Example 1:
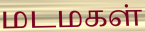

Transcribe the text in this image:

மடமகள்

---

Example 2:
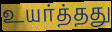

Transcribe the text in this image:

உயர்த்தது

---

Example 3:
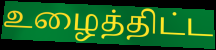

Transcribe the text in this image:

உழைத்திட்ட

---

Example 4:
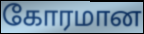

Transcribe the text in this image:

கோரமான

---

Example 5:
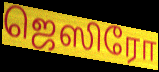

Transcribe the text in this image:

ஜெஸிரோ